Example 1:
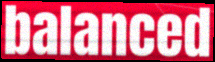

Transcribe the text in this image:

balanced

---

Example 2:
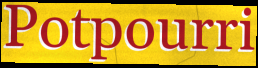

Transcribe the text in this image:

Potpourri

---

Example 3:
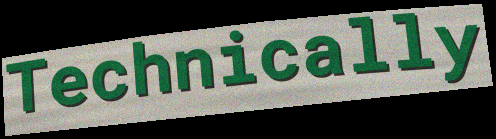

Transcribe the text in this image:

Technically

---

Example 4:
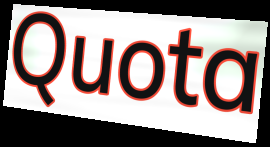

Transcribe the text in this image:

Quota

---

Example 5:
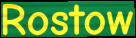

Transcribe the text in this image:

Rostow